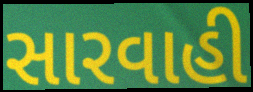
સારવાહી